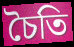
চৈতি